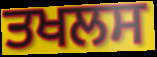
ਤਖਲਸ